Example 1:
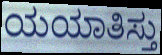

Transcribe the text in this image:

ಯಯಾತಿಸ್ತು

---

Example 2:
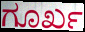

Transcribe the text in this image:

ಗೂರ್ಖ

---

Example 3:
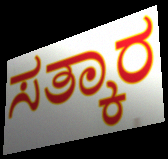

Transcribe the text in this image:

ಸತ್ಕಾರ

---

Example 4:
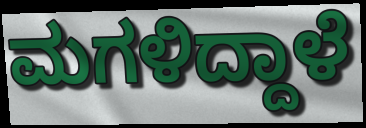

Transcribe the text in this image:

ಮಗಳಿದ್ದಾಳೆ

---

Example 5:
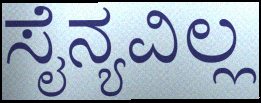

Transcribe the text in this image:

ಸೈನ್ಯವಿಲ್ಲ